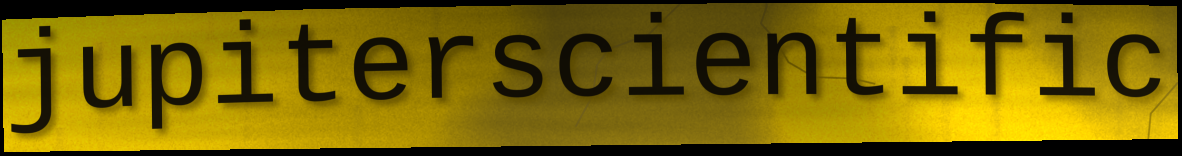
jupiterscientific